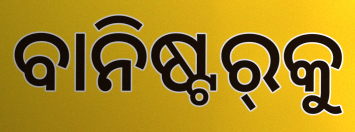
ବାନିଷ୍ଟର୍‍କୁ